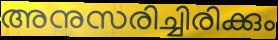
അനുസരിച്ചിരിക്കും